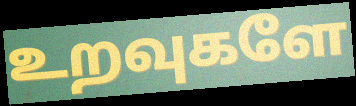
உறவுகளே